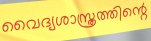
വൈദ്യശാസ്ത്രത്തിന്റെ